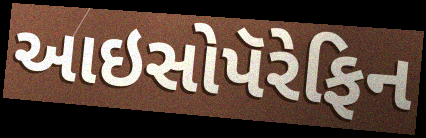
આઇસોપૅરેફિન